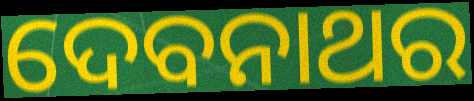
ଦେବନାଥର